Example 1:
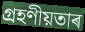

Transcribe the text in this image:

গ্ৰহণীয়তাৰ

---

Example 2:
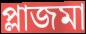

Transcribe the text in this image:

প্লাজমা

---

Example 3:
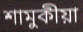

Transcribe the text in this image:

শামুকীয়া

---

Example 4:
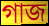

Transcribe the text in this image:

গাজ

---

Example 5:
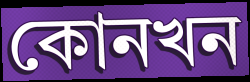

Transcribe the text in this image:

কোনখন